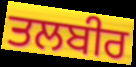
ਤਲਬੀਰ